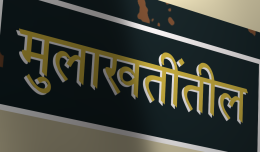
मुलाखतींतील